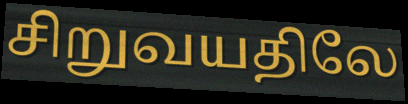
சிறுவயதிலே